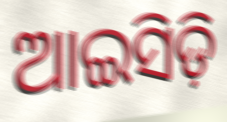
ଆଇସିଡ଼ି